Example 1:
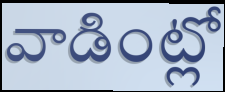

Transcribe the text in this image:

వాడింట్లో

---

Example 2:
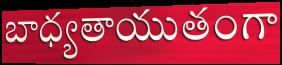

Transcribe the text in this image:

బాధ్యతాయుతంగా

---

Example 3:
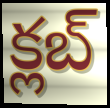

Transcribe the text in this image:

క్లబ్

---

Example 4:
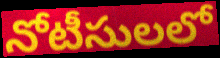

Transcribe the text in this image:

నోటీసులలో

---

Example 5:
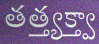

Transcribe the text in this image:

తత్త్యక్త్వా